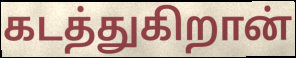
கடத்துகிறான்